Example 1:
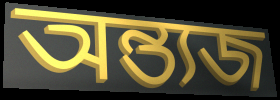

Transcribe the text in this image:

অন্ত্যজ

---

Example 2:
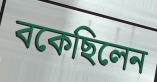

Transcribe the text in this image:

বকেছিলেন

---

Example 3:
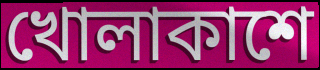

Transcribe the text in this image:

খোলাকাশে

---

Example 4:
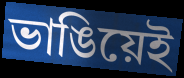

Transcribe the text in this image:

ভাঙিয়েই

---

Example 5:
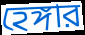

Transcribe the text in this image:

হেঙ্গার